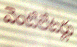
వెంటిలేటర్లు